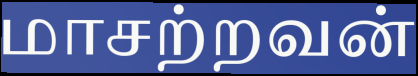
மாசற்றவன்